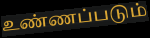
உண்ணப்படும்